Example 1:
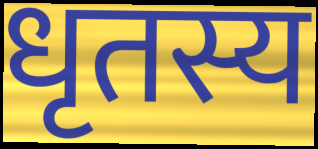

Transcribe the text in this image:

धृतस्य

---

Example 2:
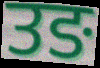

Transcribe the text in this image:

उङ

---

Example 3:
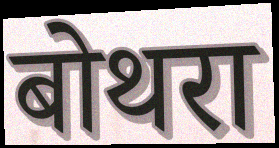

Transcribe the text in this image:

बोथरा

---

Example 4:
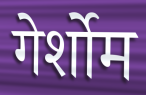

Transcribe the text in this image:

गेर्शोम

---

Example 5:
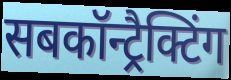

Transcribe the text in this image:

सबकॉन्ट्रैक्टिंग